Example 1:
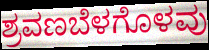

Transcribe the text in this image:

ಶ್ರವಣಬೆಳಗೊಳವು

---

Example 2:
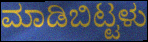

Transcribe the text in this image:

ಮಾಡಿಬಿಟ್ಟಳು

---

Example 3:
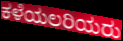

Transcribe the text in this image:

ಕಳೆಯಲರಿಯರು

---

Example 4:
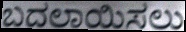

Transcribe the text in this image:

ಬದಲಾಯಿಸಲು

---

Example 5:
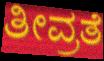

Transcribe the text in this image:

ತೀವ್ರತೆ